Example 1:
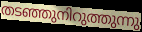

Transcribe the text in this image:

തടഞ്ഞുനിറുത്തുന്നു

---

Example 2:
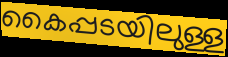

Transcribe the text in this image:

കൈപ്പടയിലുള്ള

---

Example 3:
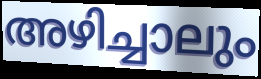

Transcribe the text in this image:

അഴിച്ചാലും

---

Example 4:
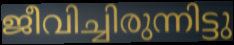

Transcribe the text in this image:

ജീവിച്ചിരുന്നിട്ടു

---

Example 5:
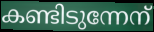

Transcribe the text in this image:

കണ്ടിടുന്നേന്